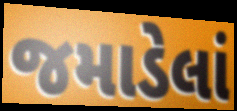
જમાડેલાં